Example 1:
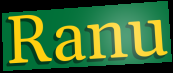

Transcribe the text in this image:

Ranu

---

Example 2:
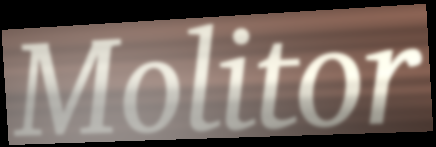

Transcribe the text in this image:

Molitor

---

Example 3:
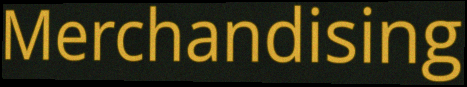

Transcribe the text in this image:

Merchandising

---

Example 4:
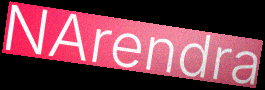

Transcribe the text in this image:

NArendra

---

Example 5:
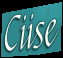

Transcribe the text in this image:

Ciise